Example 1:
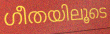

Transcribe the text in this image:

ഗീതയിലൂടെ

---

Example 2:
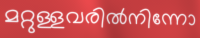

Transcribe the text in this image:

മറ്റുള്ളവരിൽനിന്നോ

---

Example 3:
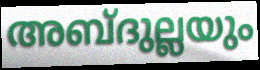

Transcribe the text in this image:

അബ്ദുല്ലയും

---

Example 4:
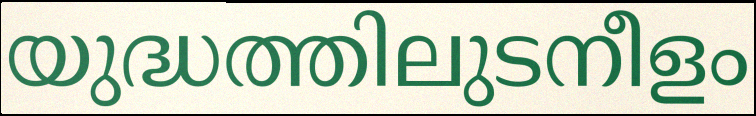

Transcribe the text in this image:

യുദ്ധത്തിലുടനീളം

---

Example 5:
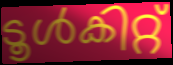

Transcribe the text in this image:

ടൂൾകിറ്റ്